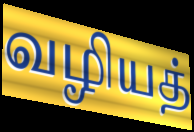
வழியத்